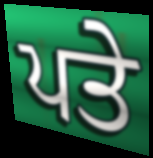
ਪਤੇ